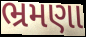
ભ્રમણા